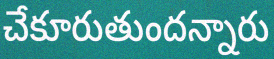
చేకూరుతుందన్నారు